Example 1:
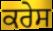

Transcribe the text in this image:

ਕਰੇਸ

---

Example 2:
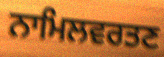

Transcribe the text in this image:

ਨਾਮਿਲਵਰਤਣ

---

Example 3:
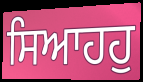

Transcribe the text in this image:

ਸਿਆਹਹੁ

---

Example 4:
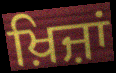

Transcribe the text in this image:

ਖ਼ਿਜ਼ਾਂ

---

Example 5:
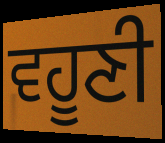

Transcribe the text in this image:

ਵਹੂਣੀ